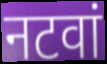
नटवां